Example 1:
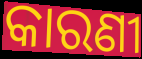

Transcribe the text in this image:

କାରଣୀ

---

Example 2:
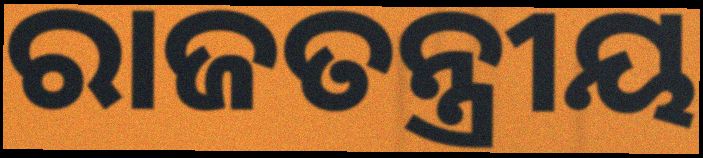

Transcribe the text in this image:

ରାଜତନ୍ତ୍ରୀୟ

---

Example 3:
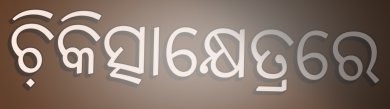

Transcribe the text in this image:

ଚ଼ିକିତ୍ସାକ୍ଷେତ୍ରରେ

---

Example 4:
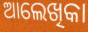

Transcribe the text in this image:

ଆଲେଖିକା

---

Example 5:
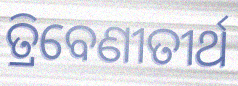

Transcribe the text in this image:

ତ୍ରିବେଣୀତୀର୍ଥ